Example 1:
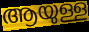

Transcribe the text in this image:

ആയുള്ള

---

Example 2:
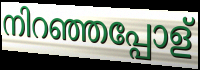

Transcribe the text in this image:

നിറഞ്ഞപ്പോള്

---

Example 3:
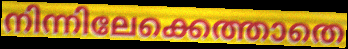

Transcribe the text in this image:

നിന്നിലേക്കെത്താതെ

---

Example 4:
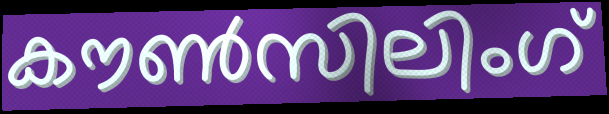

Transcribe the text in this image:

കൗൺസിലിംഗ്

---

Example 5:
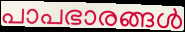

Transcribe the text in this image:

പാപഭാരങ്ങൾ